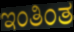
ಇಂತಿಂತ